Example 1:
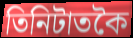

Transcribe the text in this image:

তিনিটাতকৈ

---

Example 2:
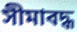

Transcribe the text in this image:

সীমাবদ্ধ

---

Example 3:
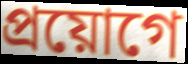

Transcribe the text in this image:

প্ৰয়োগে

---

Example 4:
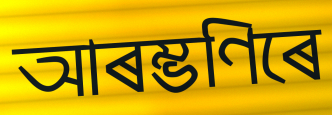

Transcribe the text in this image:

আৰম্ভণিৰে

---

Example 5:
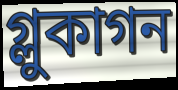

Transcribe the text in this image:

গ্লুকাগন